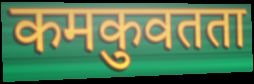
कमकुवतता